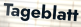
Tageblatt